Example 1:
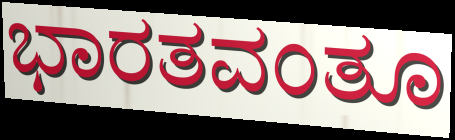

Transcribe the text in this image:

ಭಾರತವಂತೂ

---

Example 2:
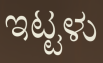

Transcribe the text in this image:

ಇಟ್ಟಳು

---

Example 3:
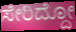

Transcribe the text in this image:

ಸೇರಿದ್ದೋ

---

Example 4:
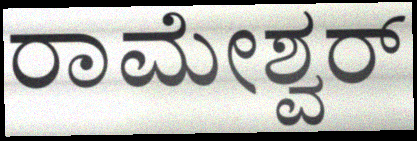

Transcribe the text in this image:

ರಾಮೇಶ್ವರ್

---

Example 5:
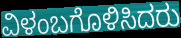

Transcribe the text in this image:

ವಿಳಂಬಗೊಳಿಸಿದರು